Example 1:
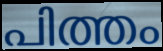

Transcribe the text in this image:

പിത്തം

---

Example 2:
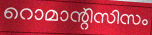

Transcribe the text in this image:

റൊമാന്റിസിസം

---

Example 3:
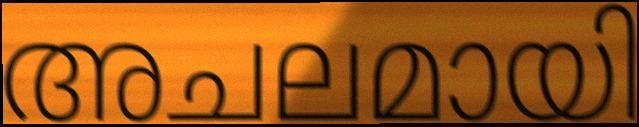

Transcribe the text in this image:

അചലമായി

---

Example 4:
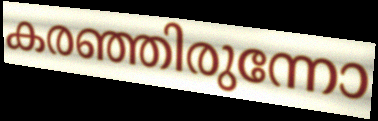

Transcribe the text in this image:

കരഞ്ഞിരുന്നോ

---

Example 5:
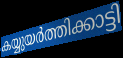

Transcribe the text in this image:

കയ്യുയർത്തിക്കാട്ടി